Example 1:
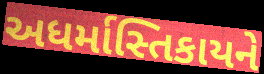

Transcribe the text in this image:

અધર્માસ્તિકાયને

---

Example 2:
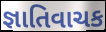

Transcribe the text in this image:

જ્ઞાતિવાચક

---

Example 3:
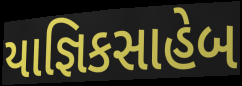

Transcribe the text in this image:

યાજ્ઞિકસાહેબ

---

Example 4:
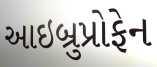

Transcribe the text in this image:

આઇબ્રુપ્રોફેન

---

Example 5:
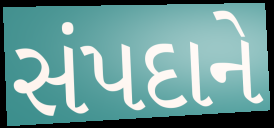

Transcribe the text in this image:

સંપદાને